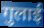
गुलाई